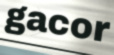
gacor